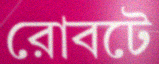
রোবটে